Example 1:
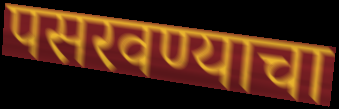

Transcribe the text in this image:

पसरवण्याचा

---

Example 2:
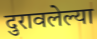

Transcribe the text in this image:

दुरावलेल्या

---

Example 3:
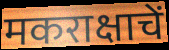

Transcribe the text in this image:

मकराक्षाचें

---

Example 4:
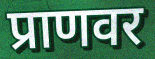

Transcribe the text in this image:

प्राणवर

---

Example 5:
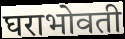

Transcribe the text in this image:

घराभोवती